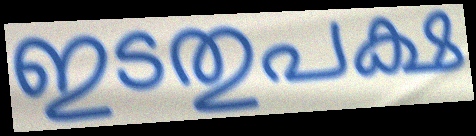
ഇടതുപക്ഷ